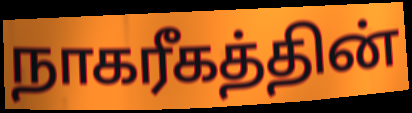
நாகரீகத்தின்